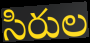
సిరుల